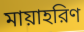
মায়াহরিণ